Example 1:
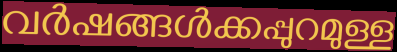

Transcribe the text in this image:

വർഷങ്ങൾക്കപ്പുറമുള്ള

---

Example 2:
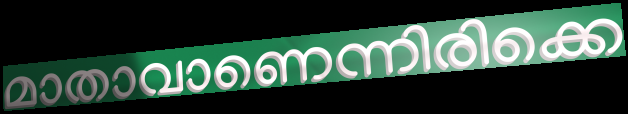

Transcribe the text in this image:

മാതാവാണെന്നിരിക്കെ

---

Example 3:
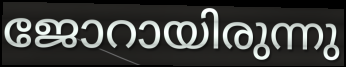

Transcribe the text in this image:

ജോറായിരുന്നു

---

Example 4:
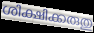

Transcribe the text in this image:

ശിക്ഷിക്കരുതു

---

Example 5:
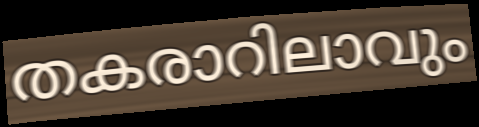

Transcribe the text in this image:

തകരാറിലാവും